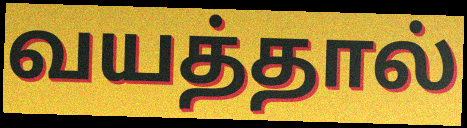
வயத்தால்